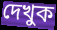
দেখুক